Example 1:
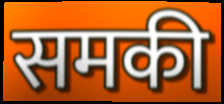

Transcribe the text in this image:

समकी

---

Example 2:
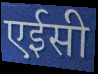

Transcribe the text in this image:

एईसी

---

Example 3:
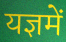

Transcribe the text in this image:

यज्ञमें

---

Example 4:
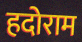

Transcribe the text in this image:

हदोराम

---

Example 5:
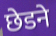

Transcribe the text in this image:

छेडने